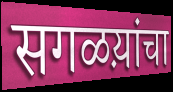
सगळय़ांचा